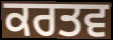
ਕਰਤਵ